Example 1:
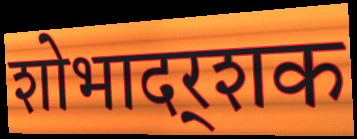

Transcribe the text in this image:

शोभादर्शक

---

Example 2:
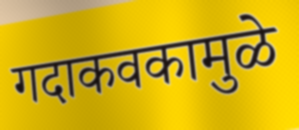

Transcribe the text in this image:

गदाकवकामुळे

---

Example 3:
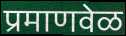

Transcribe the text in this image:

प्रमाणवेळ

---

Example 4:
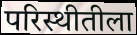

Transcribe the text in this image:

परिस्थीतीला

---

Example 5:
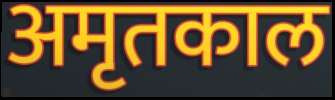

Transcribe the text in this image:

अमृतकाल